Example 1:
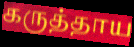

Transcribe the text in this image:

கருத்தாய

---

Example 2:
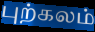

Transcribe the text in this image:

புற்கலம்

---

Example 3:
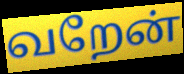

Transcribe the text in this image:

வறேன்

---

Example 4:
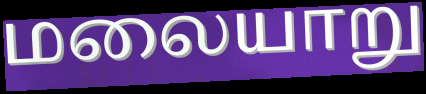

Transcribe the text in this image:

மலையாறு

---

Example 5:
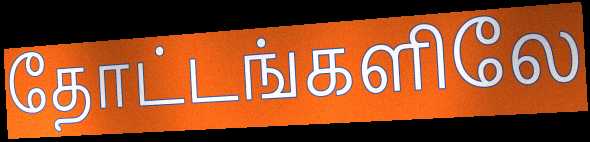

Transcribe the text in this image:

தோட்டங்களிலே